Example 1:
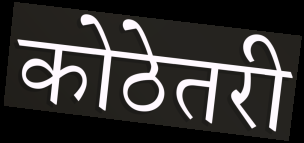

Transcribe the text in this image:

कोठेतरी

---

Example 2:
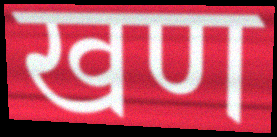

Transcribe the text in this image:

खण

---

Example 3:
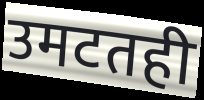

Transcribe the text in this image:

उमटतही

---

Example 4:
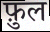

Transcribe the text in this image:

फ़ुल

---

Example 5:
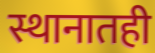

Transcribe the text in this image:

स्थानातही